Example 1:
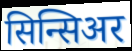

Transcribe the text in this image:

सिन्सिअर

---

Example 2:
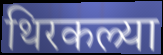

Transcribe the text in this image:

थिरकल्या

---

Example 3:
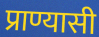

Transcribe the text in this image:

प्राण्यासी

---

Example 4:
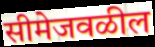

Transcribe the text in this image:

सीमेजवळील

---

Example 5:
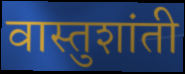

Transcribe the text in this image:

वास्तुशांती